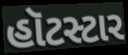
હૉટસ્ટાર